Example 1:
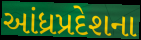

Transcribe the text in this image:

આંધ્રપ્રદેશના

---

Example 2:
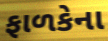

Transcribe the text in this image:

ફાળકેના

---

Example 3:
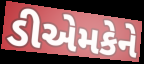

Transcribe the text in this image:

ડીએમકેને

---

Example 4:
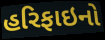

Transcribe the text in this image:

હરિફાઇનો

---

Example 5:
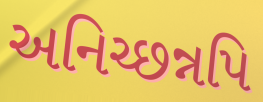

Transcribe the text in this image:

અનિચ્છન્નપિ